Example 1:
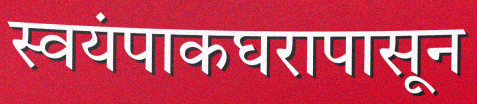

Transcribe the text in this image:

स्वयंपाकघरापासून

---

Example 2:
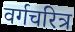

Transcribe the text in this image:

वर्गचरित्र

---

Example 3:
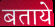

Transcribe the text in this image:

बताये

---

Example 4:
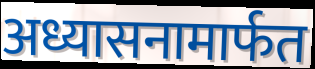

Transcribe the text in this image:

अध्यासनामार्फत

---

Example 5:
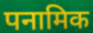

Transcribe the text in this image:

पनामिक